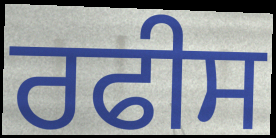
ਰਫੀਸ